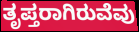
ತೃಪ್ತರಾಗಿರುವೆವು